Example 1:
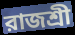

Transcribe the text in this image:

রাজশ্রী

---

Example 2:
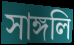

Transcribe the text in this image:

সাঙ্গলি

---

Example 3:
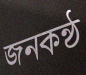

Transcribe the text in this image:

জনকন্ঠ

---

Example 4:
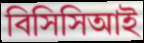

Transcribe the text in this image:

বিসিসিআই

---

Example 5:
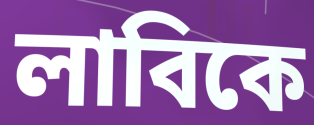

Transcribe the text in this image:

লাবিকে